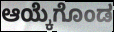
ಆಯ್ಕೆಗೊಂಡ